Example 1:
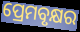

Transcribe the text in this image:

ପ୍ରେମବୃକ୍ଷର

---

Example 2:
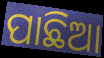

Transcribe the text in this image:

ପାଛିଆ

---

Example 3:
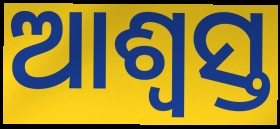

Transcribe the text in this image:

ଆଶ୍ଵସ୍ତ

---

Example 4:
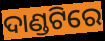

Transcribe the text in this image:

ଦାଣ୍ଡଟିରେ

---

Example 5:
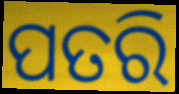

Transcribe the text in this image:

ପତରି